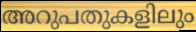
അറുപതുകളിലും